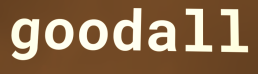
goodall